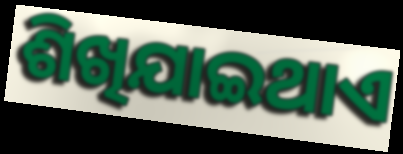
ଶିଖିଯାଇଥାଏ